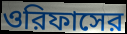
ওরিফাসের